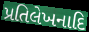
પ્રતિલેખનાદિ